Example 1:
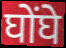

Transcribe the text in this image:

घोंघे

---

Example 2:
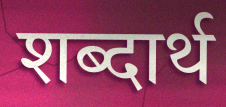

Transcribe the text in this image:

शब्दार्थ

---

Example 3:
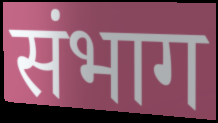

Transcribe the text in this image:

संभाग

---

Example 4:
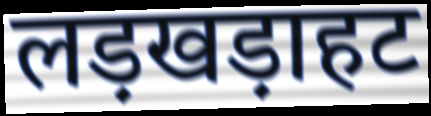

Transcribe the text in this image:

लड़खड़ाहट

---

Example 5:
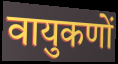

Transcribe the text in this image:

वायुकणों